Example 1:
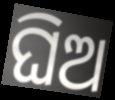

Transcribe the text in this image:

ଘିଅ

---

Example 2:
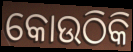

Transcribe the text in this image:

କୋଉଠିକି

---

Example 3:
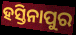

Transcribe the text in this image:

ହସ୍ତିନାପୁର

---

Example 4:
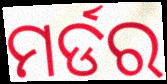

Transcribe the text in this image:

ମର୍ଡର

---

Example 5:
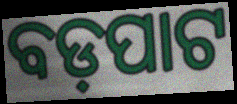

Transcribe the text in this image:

ବଡ଼ପାଟ